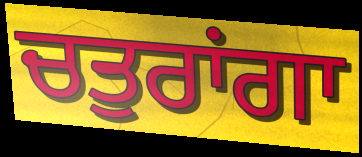
ਚਤੁਰਾਂਗਾ